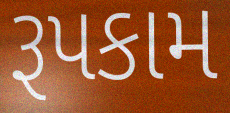
રૂપકામ